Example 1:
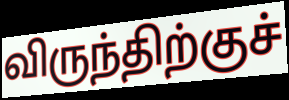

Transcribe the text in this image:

விருந்திற்குச்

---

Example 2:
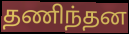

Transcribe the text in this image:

தணிந்தன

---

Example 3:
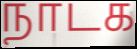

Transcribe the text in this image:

நாடக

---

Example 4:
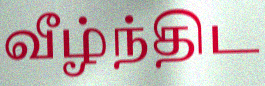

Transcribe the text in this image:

வீழ்ந்திட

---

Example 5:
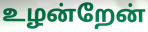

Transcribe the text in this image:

உழன்றேன்